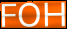
FOH